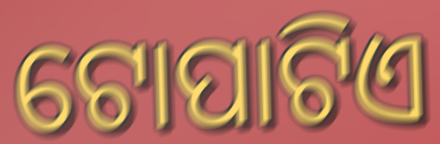
ଟୋପାଟିଏ